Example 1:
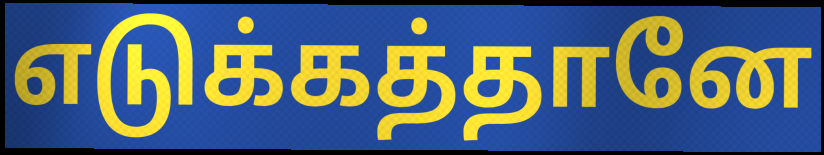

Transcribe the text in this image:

எடுக்கத்தானே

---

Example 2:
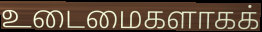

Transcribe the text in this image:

உடைமைகளாகக்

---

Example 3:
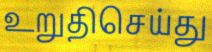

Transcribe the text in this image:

உறுதிசெய்து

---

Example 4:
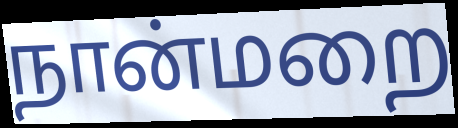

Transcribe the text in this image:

நான்மறை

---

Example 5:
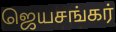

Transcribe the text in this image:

ஜெயசங்கர்